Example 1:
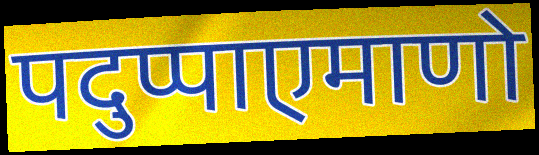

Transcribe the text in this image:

पदुप्पाएमाणो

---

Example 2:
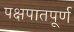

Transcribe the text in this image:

पक्षपातपूर्ण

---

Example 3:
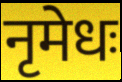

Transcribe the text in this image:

नृमेधः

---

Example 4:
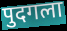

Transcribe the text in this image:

पुदगला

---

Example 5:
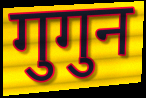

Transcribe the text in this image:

गुगुन